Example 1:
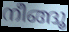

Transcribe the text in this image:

നീങ്ങൂ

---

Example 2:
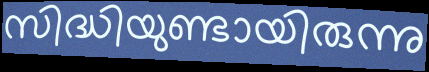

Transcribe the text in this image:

സിദ്ധിയുണ്ടായിരുന്നു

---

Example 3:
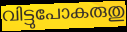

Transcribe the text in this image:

വിട്ടുപോകരുതു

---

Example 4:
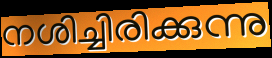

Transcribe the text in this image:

നശിച്ചിരിക്കുന്നു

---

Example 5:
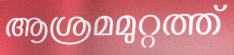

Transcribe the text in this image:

ആശ്രമമുറ്റത്ത്